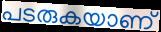
പടരുകയാണ്